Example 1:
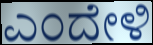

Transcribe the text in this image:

ಎಂದೇಳಿ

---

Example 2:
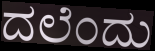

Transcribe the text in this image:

ದಲೆಂದು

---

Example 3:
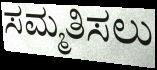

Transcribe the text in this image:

ಸಮ್ಮತಿಸಲು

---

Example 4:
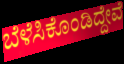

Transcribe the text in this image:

ಬೆಳೆಸಿಕೊಂಡಿದ್ದೇವೆ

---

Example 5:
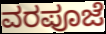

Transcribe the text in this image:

ವರಪೂಜೆ